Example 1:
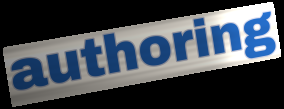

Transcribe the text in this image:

authoring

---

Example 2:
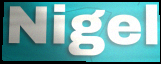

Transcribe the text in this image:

Nigel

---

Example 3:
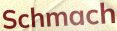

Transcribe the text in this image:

Schmach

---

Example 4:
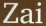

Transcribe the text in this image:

Zai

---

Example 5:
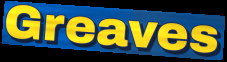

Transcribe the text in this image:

Greaves